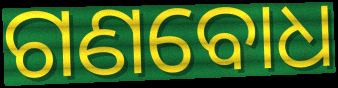
ଗଣବୋଧ